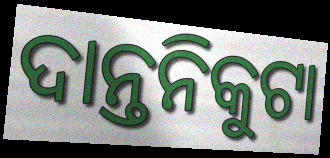
ଦାନ୍ତନିକୁଟା